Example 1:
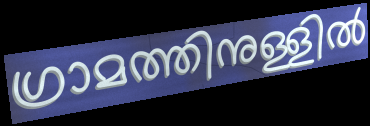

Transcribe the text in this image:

ഗ്രാമത്തിനുള്ളിൽ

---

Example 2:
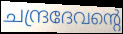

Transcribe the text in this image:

ചന്ദ്രദേവന്റെ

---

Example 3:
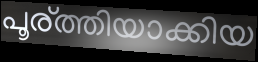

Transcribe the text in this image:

പൂര്ത്തിയാക്കിയ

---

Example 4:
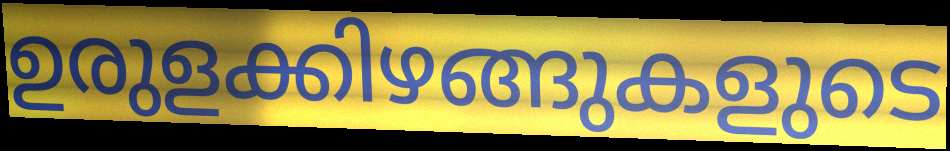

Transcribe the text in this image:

ഉരുളക്കിഴങ്ങുകളുടെ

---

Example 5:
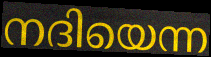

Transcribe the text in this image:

നദിയെന്ന